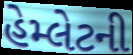
હેમ્લેટની